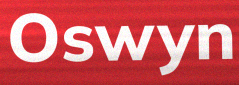
Oswyn